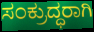
ಸಂಕ್ರುದ್ಧರಾಗಿ